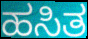
ಹಸಿತ